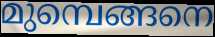
മുമ്പെങ്ങനെ